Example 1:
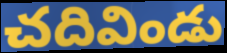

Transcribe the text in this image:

చదివిండు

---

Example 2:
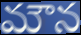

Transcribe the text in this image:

మౌన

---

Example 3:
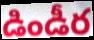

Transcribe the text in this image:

డిండీర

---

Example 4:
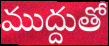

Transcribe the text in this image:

ముద్దుతో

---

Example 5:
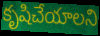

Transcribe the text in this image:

కృషిచేయాలని